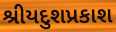
શ્રીયદુશપ્રકાશ